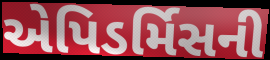
એપિડર્મિસની